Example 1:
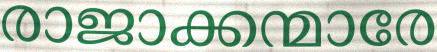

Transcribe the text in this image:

രാജാക്കന്മാരേ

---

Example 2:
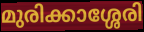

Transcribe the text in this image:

മുരിക്കാശ്ശേരി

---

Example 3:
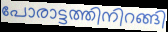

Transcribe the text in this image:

പോരാട്ടത്തിനിറങ്ങി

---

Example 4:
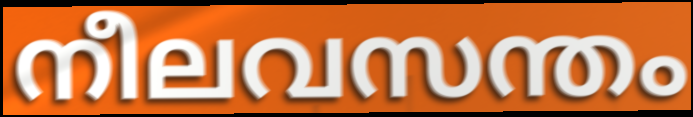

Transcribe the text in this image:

നീലവസന്തം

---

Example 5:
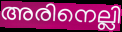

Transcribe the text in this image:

അരിനെല്ലി